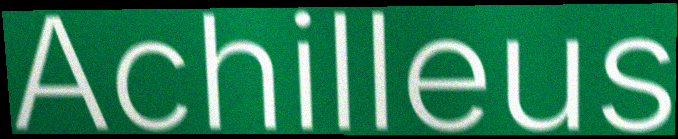
Achilleus